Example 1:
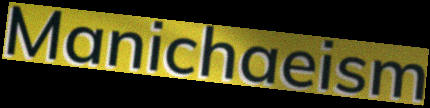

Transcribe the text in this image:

Manichaeism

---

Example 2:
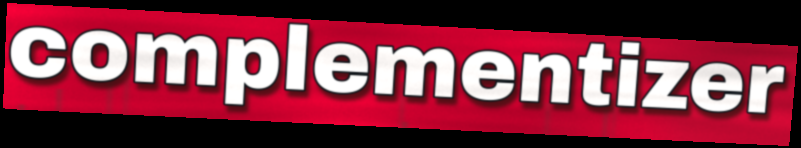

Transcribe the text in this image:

complementizer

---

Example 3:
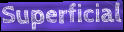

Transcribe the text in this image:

Superficial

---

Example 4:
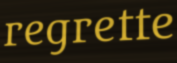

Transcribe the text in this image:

regrette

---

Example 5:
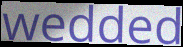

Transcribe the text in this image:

wedded